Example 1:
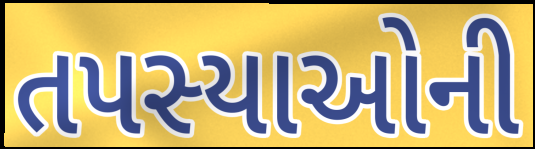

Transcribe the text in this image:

તપસ્યાઓની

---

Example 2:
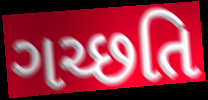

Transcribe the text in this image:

ગચ્છતિ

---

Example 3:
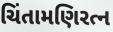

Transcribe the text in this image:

ચિંતામણિરત્ન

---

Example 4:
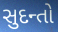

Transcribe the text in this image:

સુદન્તો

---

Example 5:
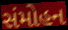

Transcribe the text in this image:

સંમોહન